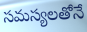
సమస్యలతోనే